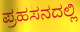
ಪ್ರಹಸನದಲ್ಲಿ